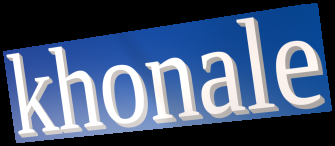
khonale